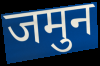
जमुन